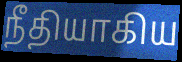
நீதியாகிய